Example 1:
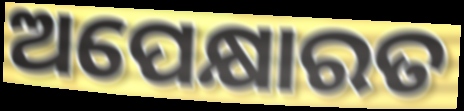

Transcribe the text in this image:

ଅପେକ୍ଷାରତ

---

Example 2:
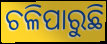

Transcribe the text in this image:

ଚଳିପାରୁଛି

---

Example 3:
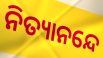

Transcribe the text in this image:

ନିତ୍ୟାନନ୍ଦେ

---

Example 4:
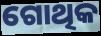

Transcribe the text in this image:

ଗୋଥିକ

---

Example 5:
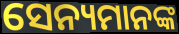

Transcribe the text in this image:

ସେନ୍ୟମାନଙ୍କ